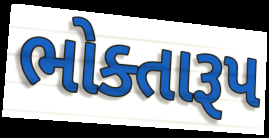
ભોક્તારૂપ